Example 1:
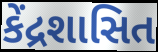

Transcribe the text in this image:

કેંદ્રશાસિત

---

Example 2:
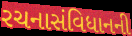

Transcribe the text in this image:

રચનાસંવિધાનની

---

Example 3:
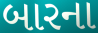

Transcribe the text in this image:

બારના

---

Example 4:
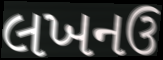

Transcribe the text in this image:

લખનઉ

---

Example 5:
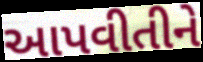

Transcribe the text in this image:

આપવીતીને